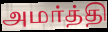
அமர்த்தி